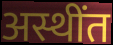
अस्थींत